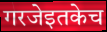
गरजेइतकेच